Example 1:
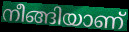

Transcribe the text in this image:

നീങ്ങിയാണ്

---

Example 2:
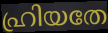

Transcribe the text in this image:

ഹ്രിയതേ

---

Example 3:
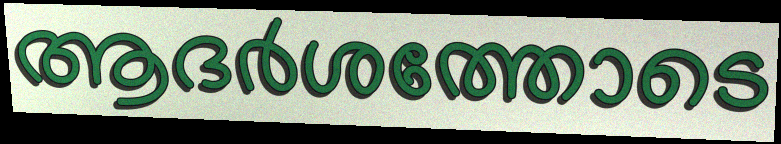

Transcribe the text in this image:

ആദർശത്തോടെ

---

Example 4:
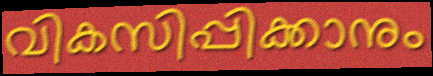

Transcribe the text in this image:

വികസിപ്പിക്കാനും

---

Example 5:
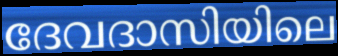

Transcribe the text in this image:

ദേവദാസിയിലെ